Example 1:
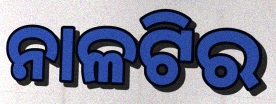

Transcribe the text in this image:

ନାଳଟିର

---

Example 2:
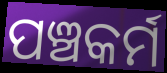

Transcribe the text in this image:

ପଞ୍ଚକର୍ମ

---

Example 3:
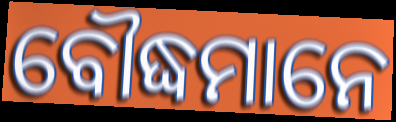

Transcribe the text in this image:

ବୌଦ୍ଧମାନେ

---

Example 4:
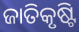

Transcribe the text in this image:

ଜାତିକୃଷ୍ଟି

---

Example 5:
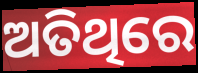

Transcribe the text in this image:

ଅତିଥିରେ